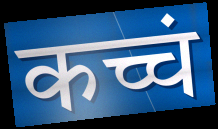
कच्चं